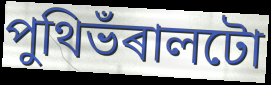
পুথিভঁৰালটো